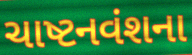
ચાષ્ટનવંશના